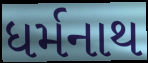
ધર્મનાથ